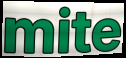
mite